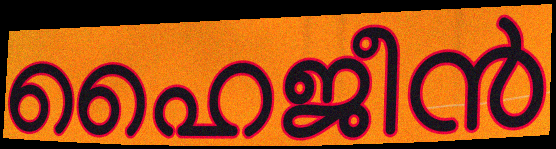
ഹൈജീൻ